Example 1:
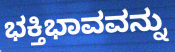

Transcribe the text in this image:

ಭಕ್ತಿಭಾವವನ್ನು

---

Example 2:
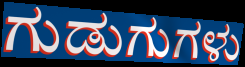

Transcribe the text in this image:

ಗುಡುಗುಗಳು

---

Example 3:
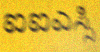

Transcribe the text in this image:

ಐಐಎಸ್ಸಿ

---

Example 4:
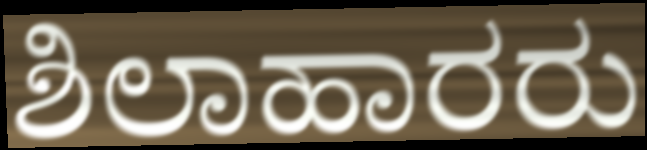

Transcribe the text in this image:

ಶಿಲಾಹಾರರು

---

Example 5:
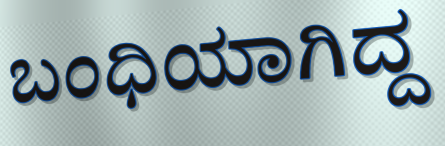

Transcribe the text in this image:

ಬಂಧಿಯಾಗಿದ್ದ